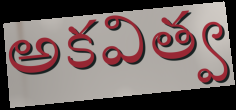
అకవిత్వ